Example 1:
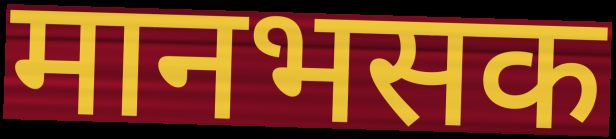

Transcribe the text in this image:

मानभसक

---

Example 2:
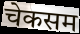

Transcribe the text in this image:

चेकसम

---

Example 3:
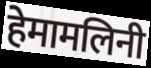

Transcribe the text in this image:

हेमामलिनी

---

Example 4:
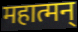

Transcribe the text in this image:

महात्मन्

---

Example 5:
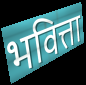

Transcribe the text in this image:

भवित्ता